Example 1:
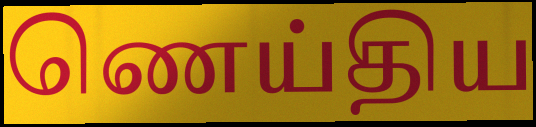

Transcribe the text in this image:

ணெய்திய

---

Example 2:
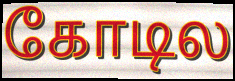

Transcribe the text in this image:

கோடில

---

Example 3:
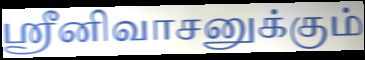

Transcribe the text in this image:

ஸ்ரீனிவாசனுக்கும்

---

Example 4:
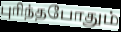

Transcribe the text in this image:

புரிந்தபோதும்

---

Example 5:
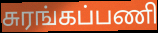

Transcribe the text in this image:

சுரங்கப்பணி